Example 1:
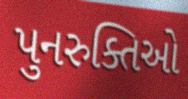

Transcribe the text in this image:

પુનરુક્તિઓ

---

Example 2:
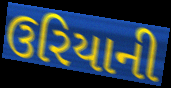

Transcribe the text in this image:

ઉરિયાની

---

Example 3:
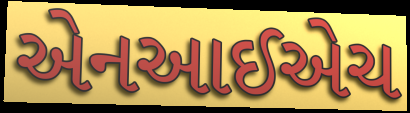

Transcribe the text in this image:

એનઆઈએચ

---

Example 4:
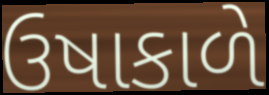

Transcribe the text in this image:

ઉષાકાળે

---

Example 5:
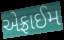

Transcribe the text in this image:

એફ્રાઈમ